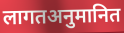
लागतअनुमानित